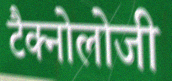
टैक्नोलोजी